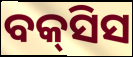
ବକ୍‍ସିସ